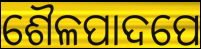
ଶୈଳପାଦପେ